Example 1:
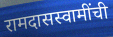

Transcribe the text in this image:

रामदासस्वामींची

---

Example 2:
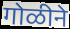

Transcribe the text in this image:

गोळीने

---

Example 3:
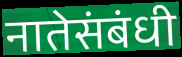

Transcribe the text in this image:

नातेसंबंधी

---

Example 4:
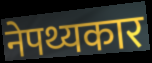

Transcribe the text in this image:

नेपथ्यकार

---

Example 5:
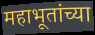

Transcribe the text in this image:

महाभूतांच्या